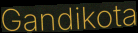
Gandikota